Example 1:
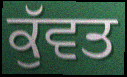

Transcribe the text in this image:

ਕੁੱਵਤ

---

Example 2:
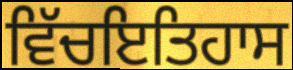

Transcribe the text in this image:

ਵਿੱਚਇਤਿਹਾਸ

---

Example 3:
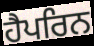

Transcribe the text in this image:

ਹੈਪਰਿਨ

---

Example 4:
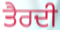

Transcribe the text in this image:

ਤੈਰਦੀ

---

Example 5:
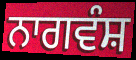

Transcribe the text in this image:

ਨਾਗਵੰਸ਼